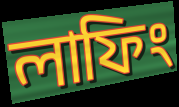
লাফিং